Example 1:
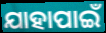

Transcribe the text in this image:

ଯାହାପାଇଁ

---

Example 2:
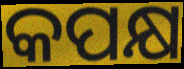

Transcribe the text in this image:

କପକ୍ଷ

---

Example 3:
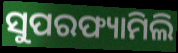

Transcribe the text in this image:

ସୁପରଫ୍ୟାମିଲି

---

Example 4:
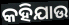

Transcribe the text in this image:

କହିଯାଉ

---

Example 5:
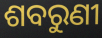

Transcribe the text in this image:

ଶବରୁଣୀ